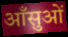
आँसुओं